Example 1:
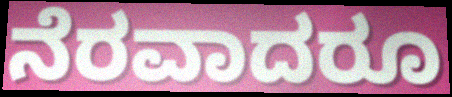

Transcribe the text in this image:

ನೆರವಾದರೂ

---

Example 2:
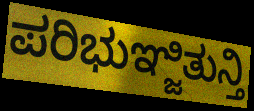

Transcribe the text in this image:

ಪರಿಭುಞ್ಜಿತುನ್ತಿ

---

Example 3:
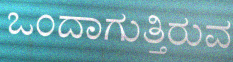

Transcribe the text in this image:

ಒಂದಾಗುತ್ತಿರುವ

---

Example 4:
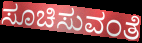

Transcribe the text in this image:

ಸೂಚಿಸುವಂತೆ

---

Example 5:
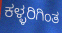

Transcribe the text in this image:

ಕಳ್ಳರಿಗಿಂತ